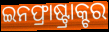
ଇନଫ୍ରାଷ୍ଟ୍ରାକ୍ଚର